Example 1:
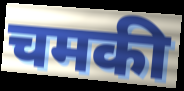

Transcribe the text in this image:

चमकी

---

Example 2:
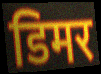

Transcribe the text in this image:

डिमर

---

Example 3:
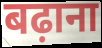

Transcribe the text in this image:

बढ़ाना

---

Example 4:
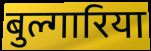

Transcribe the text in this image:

बुल्गारिया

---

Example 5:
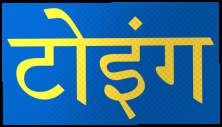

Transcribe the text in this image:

टोइंग